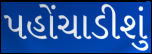
પહોંચાડીશું